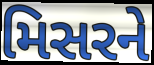
મિસરને